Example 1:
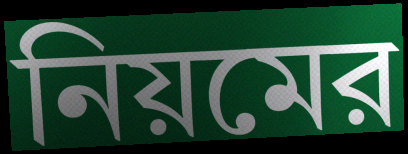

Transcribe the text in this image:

নিয়মের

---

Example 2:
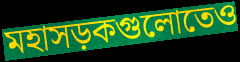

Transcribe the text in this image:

মহাসড়কগুলোতেও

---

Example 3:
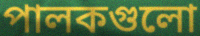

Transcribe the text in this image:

পালকগুলো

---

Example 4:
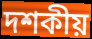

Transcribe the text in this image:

দশকীয়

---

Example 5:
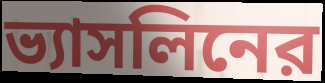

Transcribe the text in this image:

ভ্যাসলিনের